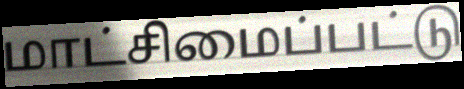
மாட்சிமைப்பட்டு